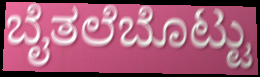
ಬೈತಲೆಬೊಟ್ಟು